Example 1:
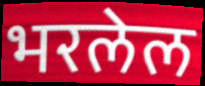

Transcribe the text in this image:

भरलेल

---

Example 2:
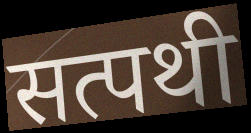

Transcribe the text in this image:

सत्पथी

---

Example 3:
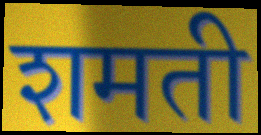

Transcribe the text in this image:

शमती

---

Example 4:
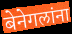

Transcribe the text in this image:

बेनेगलांना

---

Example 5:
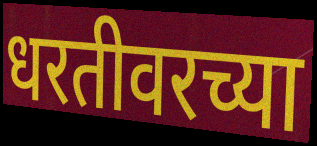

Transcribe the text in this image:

धरतीवरच्या